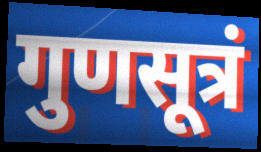
गुणसूत्रं